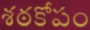
శఠకోపం